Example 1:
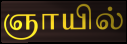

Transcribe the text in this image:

ஞாயில்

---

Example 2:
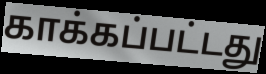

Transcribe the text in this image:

காக்கப்பட்டது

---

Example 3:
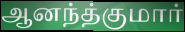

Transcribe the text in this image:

ஆனந்த்குமார்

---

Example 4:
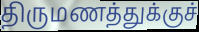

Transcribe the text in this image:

திருமணத்துக்குச்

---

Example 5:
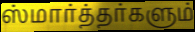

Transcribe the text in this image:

ஸ்மார்த்தர்களும்